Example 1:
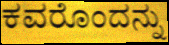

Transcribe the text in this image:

ಕವರೊಂದನ್ನು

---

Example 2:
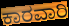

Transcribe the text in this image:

ಕಾರವಾರಿ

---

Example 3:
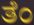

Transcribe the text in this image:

ತೆಂ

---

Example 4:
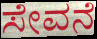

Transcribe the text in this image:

ಸೇವನೆ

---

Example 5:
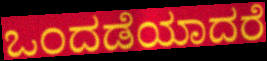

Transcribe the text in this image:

ಒಂದಡೆಯಾದರೆ